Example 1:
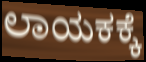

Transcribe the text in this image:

ಲಾಯಕಕ್ಕೆ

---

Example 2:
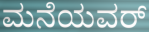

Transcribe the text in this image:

ಮನೆಯವರ್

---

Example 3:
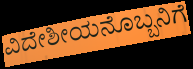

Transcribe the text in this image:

ವಿದೇಶೀಯನೊಬ್ಬನಿಗೆ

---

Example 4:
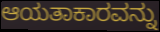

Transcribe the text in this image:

ಆಯತಾಕಾರವನ್ನು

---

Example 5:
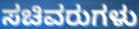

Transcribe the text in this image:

ಸಚಿವರುಗಳು